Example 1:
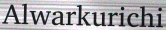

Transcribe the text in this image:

Alwarkurichi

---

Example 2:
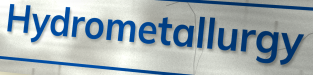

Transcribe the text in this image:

Hydrometallurgy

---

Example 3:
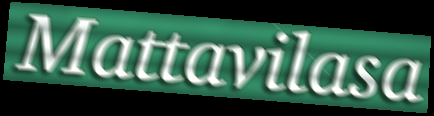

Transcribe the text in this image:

Mattavilasa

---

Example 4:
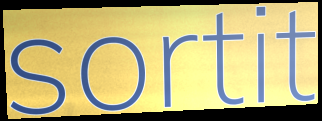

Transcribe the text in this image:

sortit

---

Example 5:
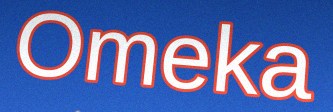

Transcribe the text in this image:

Omeka